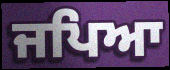
ਜਪਿਆ